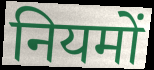
नियमों